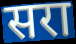
सरा